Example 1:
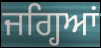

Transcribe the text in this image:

ਜਗ੍ਹਿਆਂ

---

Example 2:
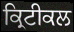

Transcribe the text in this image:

ਕ੍ਰਿਟੀਕਲ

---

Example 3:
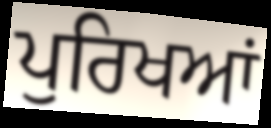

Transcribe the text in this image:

ਪੁਰਿਖਆਂ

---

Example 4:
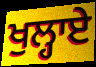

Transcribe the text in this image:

ਖੁਲ੍ਹਾਏ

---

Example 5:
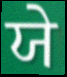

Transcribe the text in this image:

ਯੇ